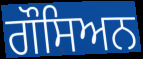
ਗੌਸਿਅਨ